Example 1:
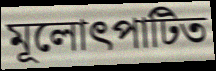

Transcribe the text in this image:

মূলোৎপাটিত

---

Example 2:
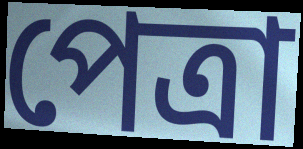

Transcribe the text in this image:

পেত্রা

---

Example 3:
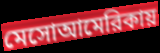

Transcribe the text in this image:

মেসোআমেরিকায়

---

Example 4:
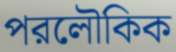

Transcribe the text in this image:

পরলৌকিক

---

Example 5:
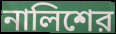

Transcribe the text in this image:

নালিশের